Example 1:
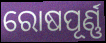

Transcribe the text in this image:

ରୋଷପୂର୍ଣ୍ଣ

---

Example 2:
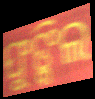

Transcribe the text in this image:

ଫୁଙ୍କିଲ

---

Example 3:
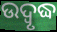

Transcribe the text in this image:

ଉଦ୍ବୃଦ୍ଧ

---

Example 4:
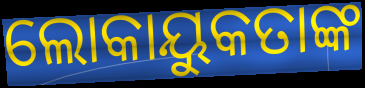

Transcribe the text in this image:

ଲୋକାୟୁକତାଙ୍କ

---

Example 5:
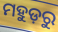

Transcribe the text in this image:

ମହୁଡ଼ରୁ